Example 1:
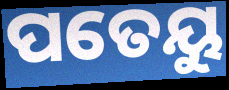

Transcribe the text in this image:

ପତେୟୁ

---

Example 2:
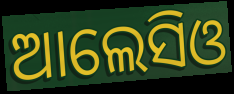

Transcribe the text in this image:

ଆଲେସିଓ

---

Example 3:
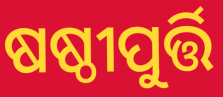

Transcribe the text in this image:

ଷଷ୍ଠୀପୁର୍ତ୍ତି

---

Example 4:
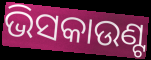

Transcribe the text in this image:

ଭିସକାଉଣ୍ଟ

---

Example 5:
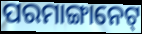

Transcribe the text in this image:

ପରମାଙ୍ଗାନେଟ୍